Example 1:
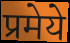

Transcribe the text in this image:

प्रमेये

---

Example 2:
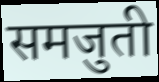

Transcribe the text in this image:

समजुती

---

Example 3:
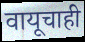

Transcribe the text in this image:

वायूचाही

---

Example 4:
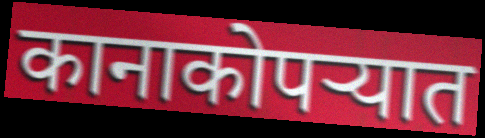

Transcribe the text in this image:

कानाकोपऱ्यात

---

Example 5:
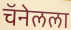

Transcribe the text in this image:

चॅनेलला